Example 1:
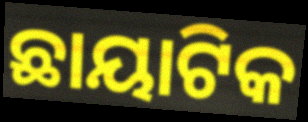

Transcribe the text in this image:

ଛାୟାଟିକ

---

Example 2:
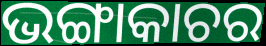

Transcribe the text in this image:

ଭଙ୍ଗାକାଚର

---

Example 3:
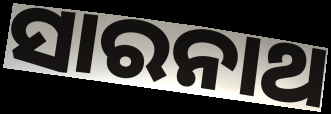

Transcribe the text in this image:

ସାରନାଥ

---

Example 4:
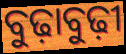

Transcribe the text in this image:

ବୁଢ଼ାବୁଢ଼ୀ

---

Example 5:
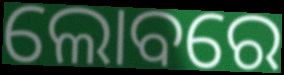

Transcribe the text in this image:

ଲୋବରେ